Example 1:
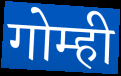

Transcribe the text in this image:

गोम्ही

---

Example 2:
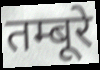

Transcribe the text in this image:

तम्बूरे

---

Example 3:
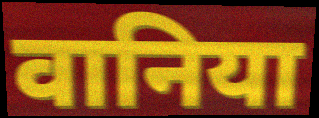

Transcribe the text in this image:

वानिया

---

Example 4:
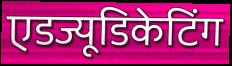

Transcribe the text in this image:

एडज्यूडिकेटिंग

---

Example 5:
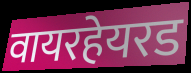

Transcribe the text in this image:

वायरहेयरड